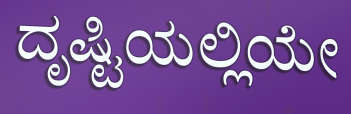
ದೃಷ್ಟಿಯಲ್ಲಿಯೇ